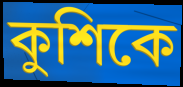
কুশিকে